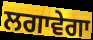
ਲਗਾਵੇਗਾ